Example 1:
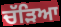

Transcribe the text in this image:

ਚੱੜਿਆ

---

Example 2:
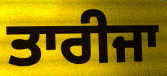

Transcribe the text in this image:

ਤਾਰੀਜਾ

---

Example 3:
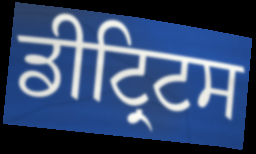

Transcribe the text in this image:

ਡੀਟ੍ਰਿਟਸ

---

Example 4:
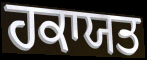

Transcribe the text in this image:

ਹਕਾਯਤ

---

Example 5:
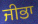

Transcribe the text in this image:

ਜੀਭਾ